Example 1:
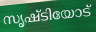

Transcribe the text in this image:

സൃഷ്ടിയോട്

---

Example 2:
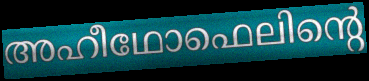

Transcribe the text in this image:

അഹീഥോഫെലിന്റെ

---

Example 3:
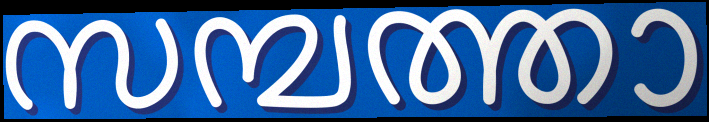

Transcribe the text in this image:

സമ്പത്താ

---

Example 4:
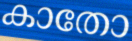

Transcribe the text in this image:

കാതോ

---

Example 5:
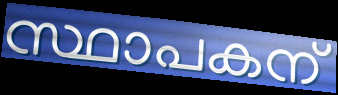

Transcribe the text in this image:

സ്ഥാപകന്